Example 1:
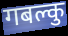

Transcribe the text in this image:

गबल्कु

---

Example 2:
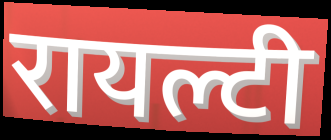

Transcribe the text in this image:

रायल्टी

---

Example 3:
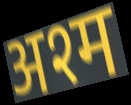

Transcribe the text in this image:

अश्म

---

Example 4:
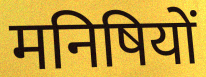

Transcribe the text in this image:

मनिषियों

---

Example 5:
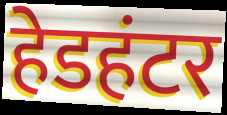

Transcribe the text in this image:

हेडहंटर